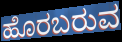
ಹೊರಬರುವ